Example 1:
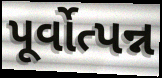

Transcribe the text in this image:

પૂર્વોત્પન્ન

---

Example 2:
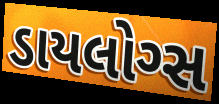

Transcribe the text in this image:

ડાયલોગ્સ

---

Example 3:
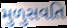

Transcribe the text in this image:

મુળુસવતિ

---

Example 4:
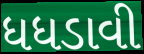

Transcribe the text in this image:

ધધડાવી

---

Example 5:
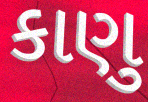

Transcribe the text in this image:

કાણુ